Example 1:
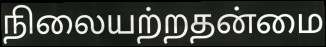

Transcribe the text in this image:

நிலையற்றதன்மை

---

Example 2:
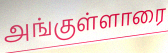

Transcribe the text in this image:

அங்குள்ளாரை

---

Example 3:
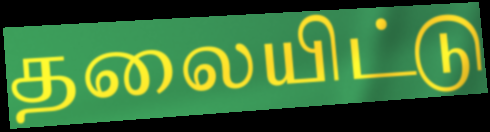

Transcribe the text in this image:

தலையிட்டு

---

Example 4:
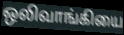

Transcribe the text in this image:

ஒலிவாங்கியை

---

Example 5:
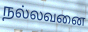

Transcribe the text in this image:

நல்லவனை